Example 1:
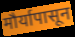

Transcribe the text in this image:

मौर्यापासून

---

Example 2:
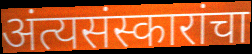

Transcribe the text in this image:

अंत्यसंस्कारांचा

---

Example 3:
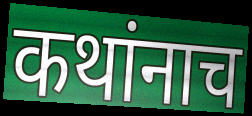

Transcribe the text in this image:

कथांनाच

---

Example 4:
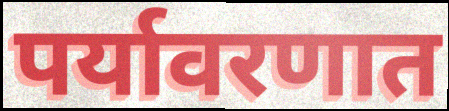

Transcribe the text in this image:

पर्यावरणात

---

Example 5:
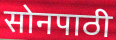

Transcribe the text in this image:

सोनपाठी